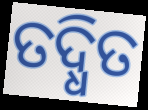
ତଦ୍ଧିତ